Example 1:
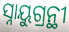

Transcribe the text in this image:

ସ୍ନାୟୁଗ୍ରନ୍ଥୀ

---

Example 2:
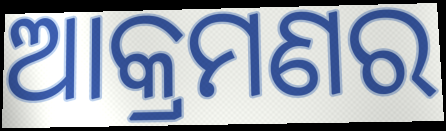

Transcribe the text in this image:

ଆକ୍ରମଣର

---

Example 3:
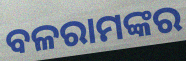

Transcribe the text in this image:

ବଳରାମଙ୍କର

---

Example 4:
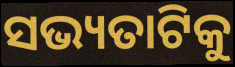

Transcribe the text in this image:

ସଭ୍ୟତାଟିକୁ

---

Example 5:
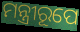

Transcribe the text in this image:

ମନ୍ତ୍ରୀରୂପେ